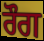
ਰੌਗ